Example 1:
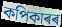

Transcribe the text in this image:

কপিকাৰৰ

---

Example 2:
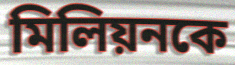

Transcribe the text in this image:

মিলিয়নকে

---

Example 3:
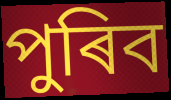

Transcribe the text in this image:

পুৰিব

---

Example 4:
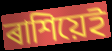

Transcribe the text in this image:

ৰাশিয়েই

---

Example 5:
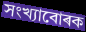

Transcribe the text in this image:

সংখ্যাবোৰক